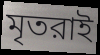
মৃতরাই